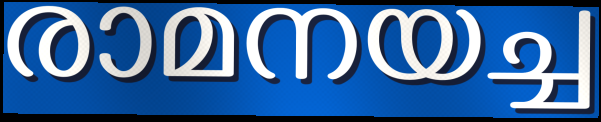
രാമനയച്ച